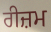
ਰੀਜ਼ਮ